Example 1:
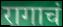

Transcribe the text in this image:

रागाचं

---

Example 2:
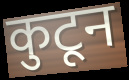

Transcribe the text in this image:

कुटून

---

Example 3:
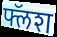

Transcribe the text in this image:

फ्लॅश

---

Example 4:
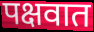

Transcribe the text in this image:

पक्षवात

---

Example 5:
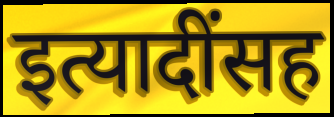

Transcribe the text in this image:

इत्यादींसह